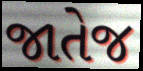
જાતેજ